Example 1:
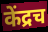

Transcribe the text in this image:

केंद्रच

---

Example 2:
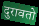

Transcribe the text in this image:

दुरावतो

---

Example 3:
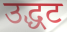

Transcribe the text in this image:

उद्धट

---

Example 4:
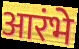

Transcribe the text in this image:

आरंभे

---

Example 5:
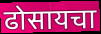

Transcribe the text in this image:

ढोसायचा